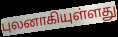
புலனாகியுள்ளது